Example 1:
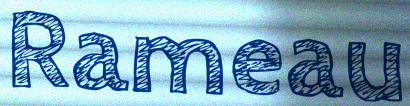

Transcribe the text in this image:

Rameau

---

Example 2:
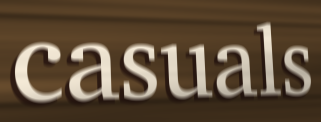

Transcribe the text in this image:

casuals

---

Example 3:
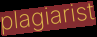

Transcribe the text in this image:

plagiarist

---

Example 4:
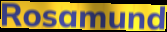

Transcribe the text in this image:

Rosamund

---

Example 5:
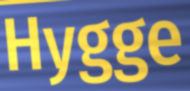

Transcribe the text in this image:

Hygge